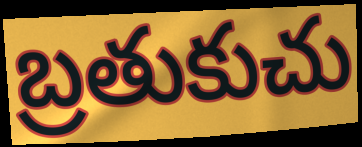
బ్రతుకుచు